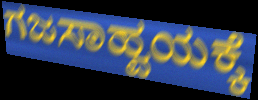
ಗಜಸಾಹ್ವಯಕ್ಕೆ